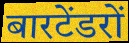
बारटेंडरों